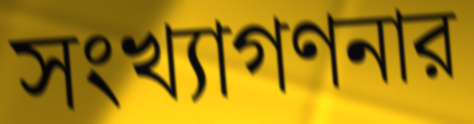
সংখ্যাগণনার